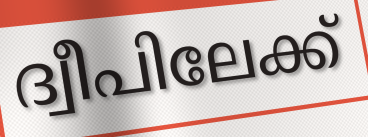
ദ്വീപിലേക്ക്